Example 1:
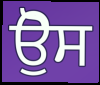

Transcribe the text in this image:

ਉੋਸ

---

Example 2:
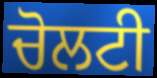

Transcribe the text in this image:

ਚੋਲਟੀ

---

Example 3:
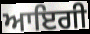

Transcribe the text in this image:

ਆਇਗੀ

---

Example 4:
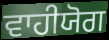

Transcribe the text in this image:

ਵਾਹੀਯੋਗ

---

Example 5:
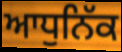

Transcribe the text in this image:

ਆਧੁਨਿੱਕ